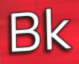
Bk